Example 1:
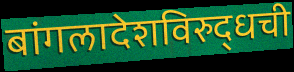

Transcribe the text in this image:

बांगलादेशविरुद्धची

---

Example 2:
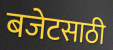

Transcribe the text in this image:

बजेटसाठी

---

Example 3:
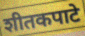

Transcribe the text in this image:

शीतकपाटे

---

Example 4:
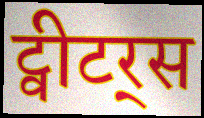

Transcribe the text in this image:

ट्वीटर्स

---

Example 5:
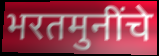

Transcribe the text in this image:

भरतमुनींचे